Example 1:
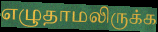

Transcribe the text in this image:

எழுதாமலிருக்க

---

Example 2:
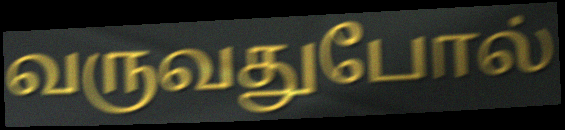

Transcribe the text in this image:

வருவதுபோல்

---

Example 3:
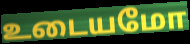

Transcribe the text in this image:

உடையமோ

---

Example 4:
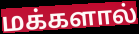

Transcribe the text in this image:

மக்களால்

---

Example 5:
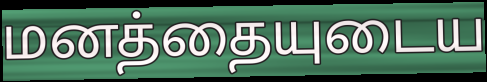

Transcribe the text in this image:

மனத்தையுடைய